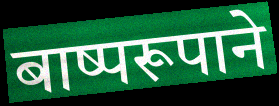
बाष्परूपाने